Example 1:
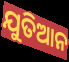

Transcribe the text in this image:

ଯୁତିଆନ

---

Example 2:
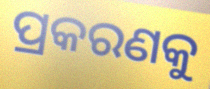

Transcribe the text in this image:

ପ୍ରକରଣକୁ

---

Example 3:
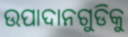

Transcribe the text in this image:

ଉପାଦାନଗୁଡିକୁ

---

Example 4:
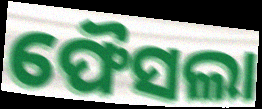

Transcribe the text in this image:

ଫୈସଲା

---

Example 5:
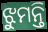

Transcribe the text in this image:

ଝୁମନ୍ତି